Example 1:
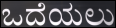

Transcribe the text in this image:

ಒದೆಯಲು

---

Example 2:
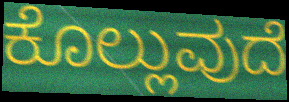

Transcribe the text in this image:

ಕೊಲ್ಲುವುದೆ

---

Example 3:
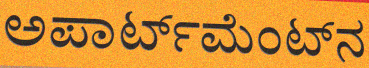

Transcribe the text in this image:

ಅಪಾರ್ಟ್‌ಮೆಂಟ್‌ನ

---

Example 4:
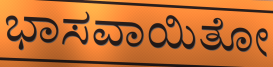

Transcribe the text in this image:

ಭಾಸವಾಯಿತೋ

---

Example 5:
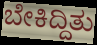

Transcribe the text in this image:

ಬೇಕಿದ್ದಿತು